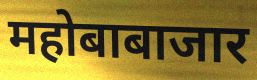
महोबाबाजार